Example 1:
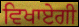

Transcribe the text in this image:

ਵਿਖਾਏਗੀ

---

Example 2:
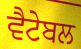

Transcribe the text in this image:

ਵੈਟੇਬਲ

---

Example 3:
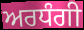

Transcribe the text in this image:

ਅਰਧੰਗੀ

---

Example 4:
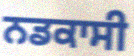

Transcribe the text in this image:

ਨਡਕਾਸੀ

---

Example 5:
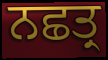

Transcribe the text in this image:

ਨਛਤ੍ਰ